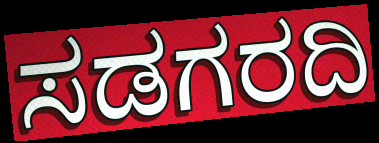
ಸಡಗರದಿ